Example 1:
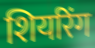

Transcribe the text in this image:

शियरिंग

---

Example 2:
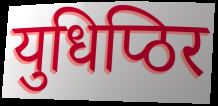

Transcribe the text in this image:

युधिप्ठिर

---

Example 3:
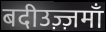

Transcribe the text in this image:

बदीउज़्ज़माँ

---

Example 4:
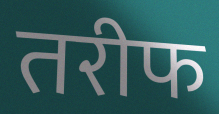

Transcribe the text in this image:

तरीफ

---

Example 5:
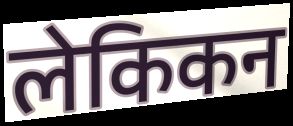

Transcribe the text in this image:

लेकिकन